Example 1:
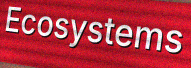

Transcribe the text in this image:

Ecosystems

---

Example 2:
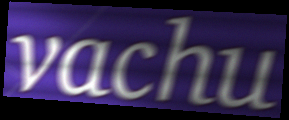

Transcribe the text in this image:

vachu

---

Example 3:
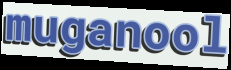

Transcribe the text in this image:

muganool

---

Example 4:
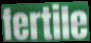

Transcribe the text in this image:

fertile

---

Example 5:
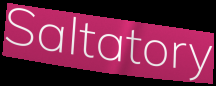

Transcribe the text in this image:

Saltatory